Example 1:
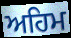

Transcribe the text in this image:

ਅਹਿਮ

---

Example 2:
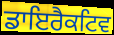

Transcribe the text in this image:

ਡਾਇਰੈਕਟਿਵ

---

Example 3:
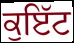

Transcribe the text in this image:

ਕੁਇੱਟ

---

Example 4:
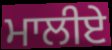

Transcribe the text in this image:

ਮਾਲੀਏ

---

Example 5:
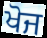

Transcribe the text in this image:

ਖੋਜ